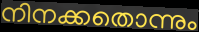
നിനക്കതൊന്നും